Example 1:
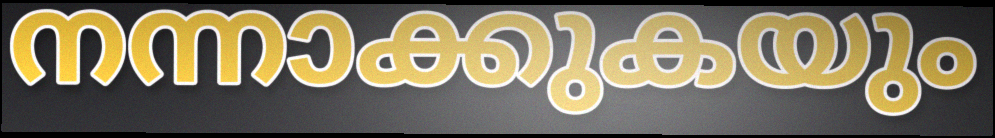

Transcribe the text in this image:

നന്നാക്കുകയും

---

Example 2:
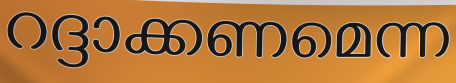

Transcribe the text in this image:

റദ്ദാക്കണമെന്ന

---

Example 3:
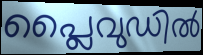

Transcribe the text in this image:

പ്ലൈവുഡിൽ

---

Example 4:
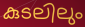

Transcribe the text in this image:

കുടലിലും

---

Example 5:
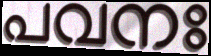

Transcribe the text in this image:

പവനഃ